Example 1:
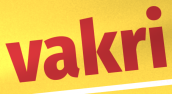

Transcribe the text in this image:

vakri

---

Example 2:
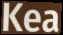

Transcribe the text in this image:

Kea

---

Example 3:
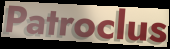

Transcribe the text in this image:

Patroclus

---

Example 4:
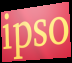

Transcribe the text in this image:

ipso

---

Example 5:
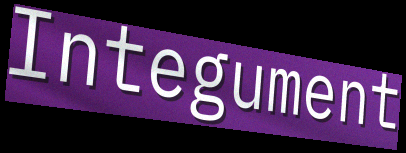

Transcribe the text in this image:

Integument